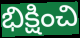
భిక్షించి